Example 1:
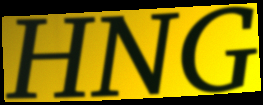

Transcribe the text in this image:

HNG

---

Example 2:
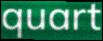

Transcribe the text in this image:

quart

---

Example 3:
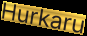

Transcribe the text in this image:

Hurkaru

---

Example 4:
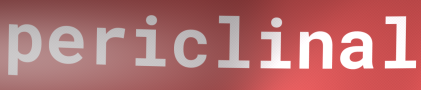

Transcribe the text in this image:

periclinal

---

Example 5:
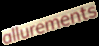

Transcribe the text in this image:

allurements